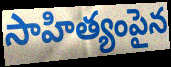
సాహిత్యంపైన